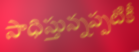
సాధిస్తున్నప్పటికీ